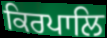
ਕਿਰਪਾਲਿ